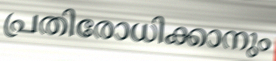
പ്രതിരോധിക്കാനും